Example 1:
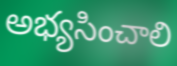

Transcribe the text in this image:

అభ్యసించాలి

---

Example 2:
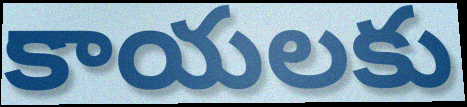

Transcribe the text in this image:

కాయలకు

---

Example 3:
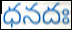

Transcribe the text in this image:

ధనదః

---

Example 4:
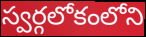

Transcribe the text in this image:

స్వర్గలోకంలోని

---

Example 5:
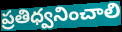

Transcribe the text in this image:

ప్రతిధ్వనించాలి